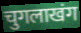
चुगलाखंग